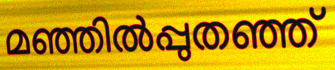
മഞ്ഞിൽപ്പുതഞ്ഞ്